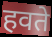
हवते